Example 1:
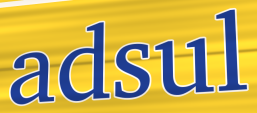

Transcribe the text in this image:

adsul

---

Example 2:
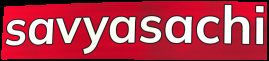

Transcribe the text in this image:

savyasachi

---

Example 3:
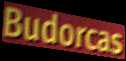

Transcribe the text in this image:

Budorcas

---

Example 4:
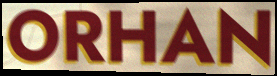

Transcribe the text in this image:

ORHAN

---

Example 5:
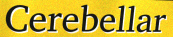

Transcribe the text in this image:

Cerebellar